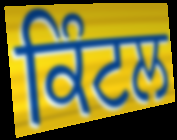
ਕਿੰਟਲ